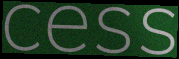
cess